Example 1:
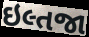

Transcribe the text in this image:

ઇલ્તજા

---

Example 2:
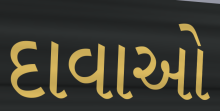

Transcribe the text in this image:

દાવાઓ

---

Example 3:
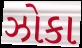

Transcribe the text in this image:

ઝોકા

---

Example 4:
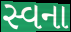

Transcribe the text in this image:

સ્વના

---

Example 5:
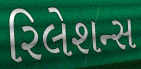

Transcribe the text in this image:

રિલેશન્સ